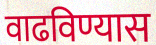
वाढविण्यास